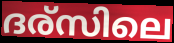
ദര്സിലെ